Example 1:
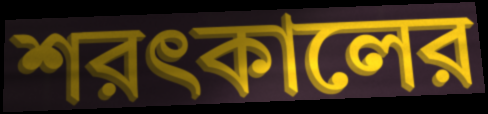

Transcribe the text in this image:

শরৎকালের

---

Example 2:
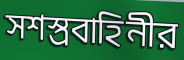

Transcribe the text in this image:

সশস্ত্রবাহিনীর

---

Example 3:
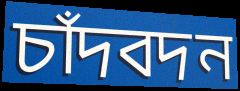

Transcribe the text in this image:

চাঁদবদন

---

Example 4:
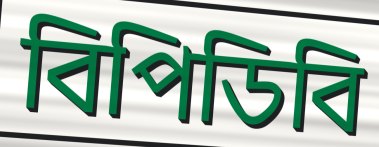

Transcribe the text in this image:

বিপিডিবি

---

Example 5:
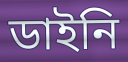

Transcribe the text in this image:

ডাইনি